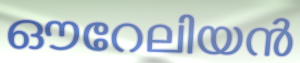
ഔറേലിയൻ